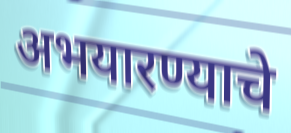
अभयारण्याचे